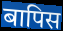
बापिस